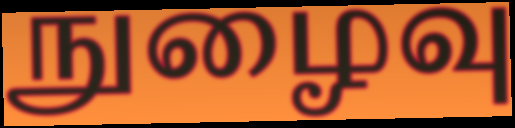
நுழைவு